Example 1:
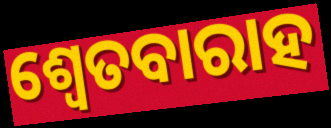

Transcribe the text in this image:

ଶ୍ଵେତବାରାହ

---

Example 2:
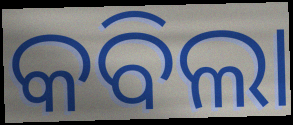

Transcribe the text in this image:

କବିଲା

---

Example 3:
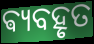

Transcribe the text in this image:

ଵ୍ୟବହୃତ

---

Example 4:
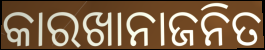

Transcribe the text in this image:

କାରଖାନାଜନିତ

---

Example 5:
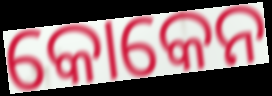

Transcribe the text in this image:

କୋକେନ